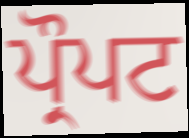
ਪ੍ਰੌਪਟ